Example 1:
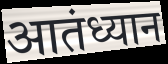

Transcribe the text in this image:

आतंध्यान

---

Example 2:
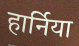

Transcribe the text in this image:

हार्निया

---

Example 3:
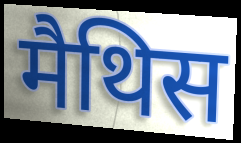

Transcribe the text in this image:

मैथिस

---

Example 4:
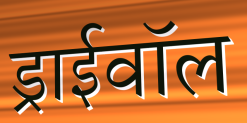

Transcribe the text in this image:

ड्राईवॉल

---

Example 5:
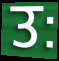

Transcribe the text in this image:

उः